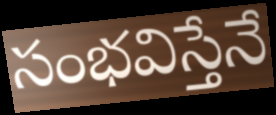
సంభవిస్తేనే